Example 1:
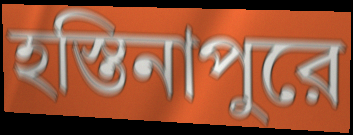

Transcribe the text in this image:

হস্তিনাপুরে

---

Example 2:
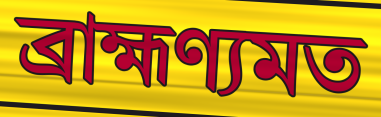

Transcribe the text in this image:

ব্রাহ্মণ্যমত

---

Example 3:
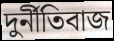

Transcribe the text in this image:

দুর্নীতিবাজ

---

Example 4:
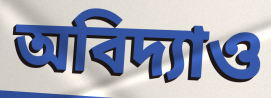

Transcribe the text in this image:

অবিদ্যাও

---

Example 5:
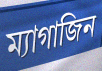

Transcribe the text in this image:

ম্যাগাজিন